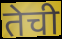
तेची